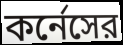
কর্নেসের